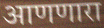
आणणारा